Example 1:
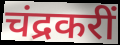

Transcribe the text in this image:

चंद्रकरीं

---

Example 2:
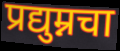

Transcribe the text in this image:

प्रद्युम्नचा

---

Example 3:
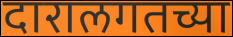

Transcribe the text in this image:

दारालगतच्या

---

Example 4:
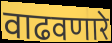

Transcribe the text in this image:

वाढवणारे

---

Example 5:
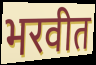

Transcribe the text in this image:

भरवीत